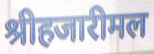
श्रीहजारीमल